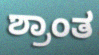
ಶ್ರಾಂತ